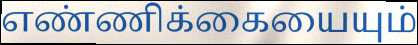
எண்ணிக்கையையும்